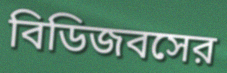
বিডিজবসের